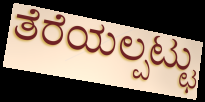
ತೆರೆಯಲ್ಪಟ್ಟು